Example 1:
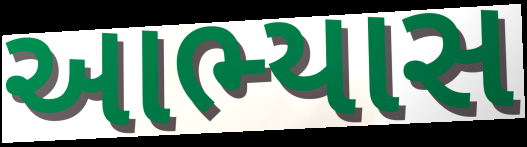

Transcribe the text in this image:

આભ્યાસ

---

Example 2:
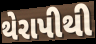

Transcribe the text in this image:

થેરાપીથી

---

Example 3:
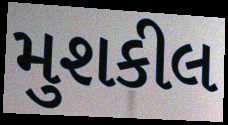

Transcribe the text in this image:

મુશકીલ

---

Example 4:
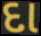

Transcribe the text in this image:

દા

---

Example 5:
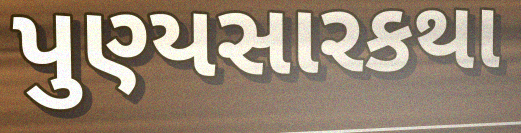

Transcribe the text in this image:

પુણ્યસારકથા